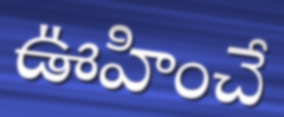
ఊహించే